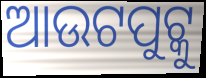
ଆଉଟପୁଟ୍କୁ